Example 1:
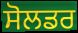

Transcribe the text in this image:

ਸੋਲਡਰ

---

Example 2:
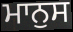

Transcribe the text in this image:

ਮਾਨੁਸ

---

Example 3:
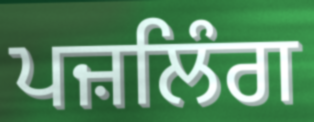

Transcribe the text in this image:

ਪਜ਼ਲਿੰਗ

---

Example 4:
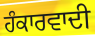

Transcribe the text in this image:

ਹੰਕਾਰਵਾਦੀ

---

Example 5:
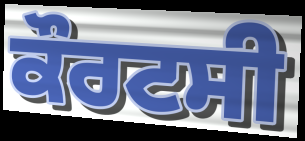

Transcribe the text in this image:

ਕੌਰਟਸੀ